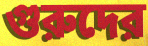
গুরুদের